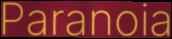
Paranoia